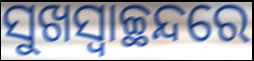
ସୁଖସ୍ୱାଚ୍ଛନ୍ଦରେ